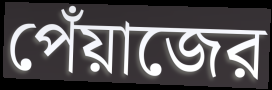
পেঁয়াজের